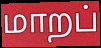
மாறப்